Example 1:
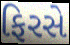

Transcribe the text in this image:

ફિરસે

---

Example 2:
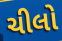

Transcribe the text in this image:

ચીલો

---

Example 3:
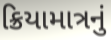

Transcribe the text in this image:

ક્રિયામાત્રનું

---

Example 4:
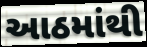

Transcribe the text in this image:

આઠમાંથી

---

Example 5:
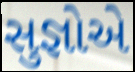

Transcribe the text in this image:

સુજ્ઞોએ